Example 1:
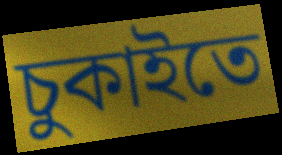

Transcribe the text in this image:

চুকাইতে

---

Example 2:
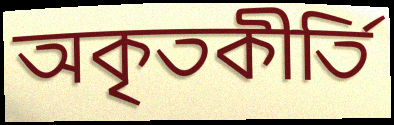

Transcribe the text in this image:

অকৃতকীর্তি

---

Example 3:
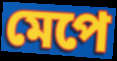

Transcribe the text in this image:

মেপে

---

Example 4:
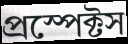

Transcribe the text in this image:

প্রস্পেক্টস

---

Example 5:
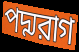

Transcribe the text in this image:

পদ্মরাগ